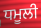
ਧਮੂਲੀ